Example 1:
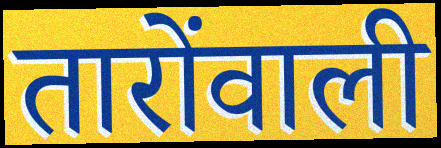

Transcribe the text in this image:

तारोंवाली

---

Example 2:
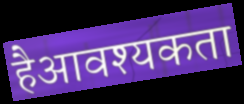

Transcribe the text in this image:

हैआवश्यकता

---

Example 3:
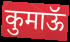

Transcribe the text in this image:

कुमाऊॅ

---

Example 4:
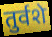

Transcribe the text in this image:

तुर्वशे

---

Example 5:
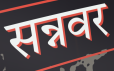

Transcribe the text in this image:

सन्नवर